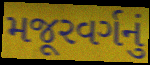
મજૂરવર્ગનું